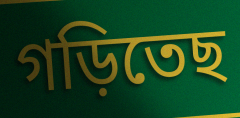
গড়িতেছ